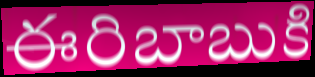
ఈరిబాబుకి